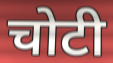
चोटी